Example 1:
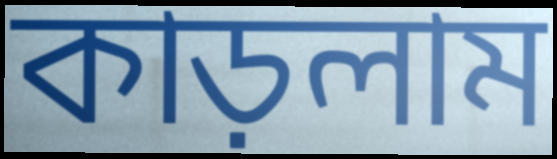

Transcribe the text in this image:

কাড়লাম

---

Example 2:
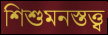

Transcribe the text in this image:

শিশুমনস্তত্ত্ব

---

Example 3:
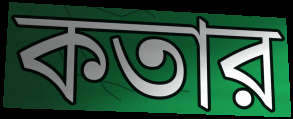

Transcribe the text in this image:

কতার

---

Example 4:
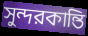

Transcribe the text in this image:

সুন্দরকান্তি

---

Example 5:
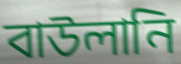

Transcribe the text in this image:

বাউলানি